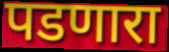
पडणारा